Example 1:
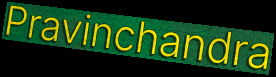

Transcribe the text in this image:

Pravinchandra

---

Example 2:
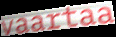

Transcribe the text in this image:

vaartaa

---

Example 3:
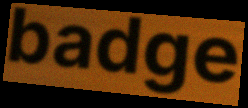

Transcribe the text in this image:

badge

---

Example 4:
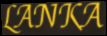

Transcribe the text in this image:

LANKA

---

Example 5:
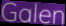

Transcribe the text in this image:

Galen